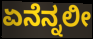
ಏನೆನ್ನಲೀ